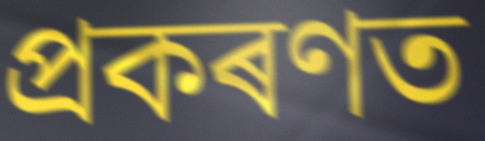
প্ৰকৰণত